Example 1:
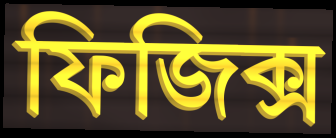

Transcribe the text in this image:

ফিজিক্স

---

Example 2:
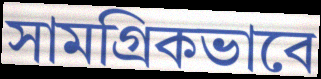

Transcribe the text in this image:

সামগ্ৰিকভাবে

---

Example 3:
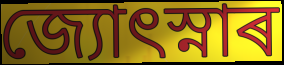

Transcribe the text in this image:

জ্যোৎস্নাৰ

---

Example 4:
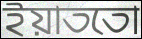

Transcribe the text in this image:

ইয়াততো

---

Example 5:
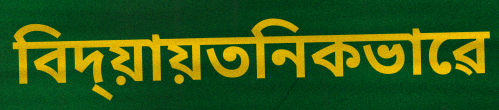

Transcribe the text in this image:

বিদ্য়ায়তনিকভাৱে